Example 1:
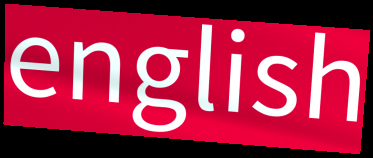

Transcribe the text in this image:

english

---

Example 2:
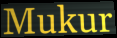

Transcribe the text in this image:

Mukur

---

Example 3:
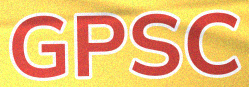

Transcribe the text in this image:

GPSC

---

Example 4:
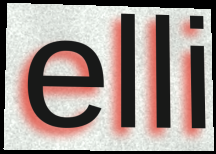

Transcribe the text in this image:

elli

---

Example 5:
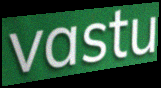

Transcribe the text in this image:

vastu